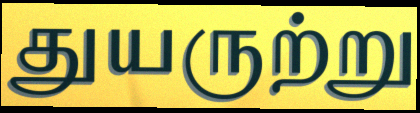
துயருற்று